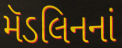
મૅડલિનનાં